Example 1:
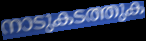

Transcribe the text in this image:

നാടുകടത്തുക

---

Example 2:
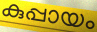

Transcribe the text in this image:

കുപ്പായം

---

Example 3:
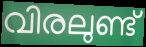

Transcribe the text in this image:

വിരലുണ്ട്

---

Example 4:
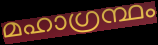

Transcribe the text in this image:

മഹാഗ്രന്ഥം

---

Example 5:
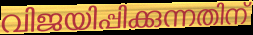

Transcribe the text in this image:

വിജയിപ്പിക്കുന്നതിന്